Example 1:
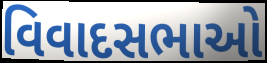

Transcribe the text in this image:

વિવાદસભાઓ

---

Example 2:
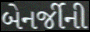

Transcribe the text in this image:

બેનર્જીની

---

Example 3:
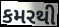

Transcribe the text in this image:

કમરથી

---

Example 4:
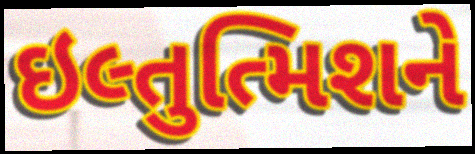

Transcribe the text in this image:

ઇલ્તુત્મિશને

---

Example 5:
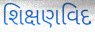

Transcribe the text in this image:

શિક્ષણવિદ